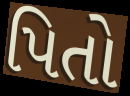
પિતો